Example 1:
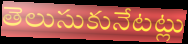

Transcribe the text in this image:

తెలుసుకునేటట్లు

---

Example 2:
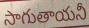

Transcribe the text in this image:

సాగుతాయనీ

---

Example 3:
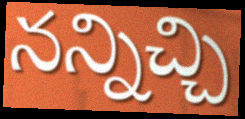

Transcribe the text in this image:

నన్నిచ్చి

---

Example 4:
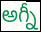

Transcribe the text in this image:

అగ్నీ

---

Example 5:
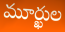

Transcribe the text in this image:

మూర్ఖుల